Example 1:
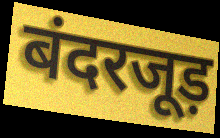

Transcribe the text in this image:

बंदरजूड़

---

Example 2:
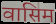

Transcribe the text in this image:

वासिम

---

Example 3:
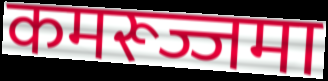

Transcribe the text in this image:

कमरूज्जमा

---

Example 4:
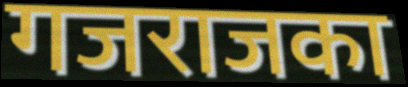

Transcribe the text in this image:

गजराजका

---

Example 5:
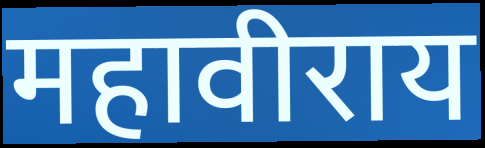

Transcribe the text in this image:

महावीराय